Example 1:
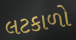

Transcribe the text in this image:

લટકાળો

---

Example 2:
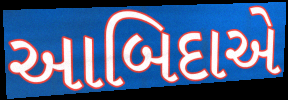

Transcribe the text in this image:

આબિદાએ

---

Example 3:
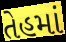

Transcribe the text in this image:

તેહમાં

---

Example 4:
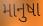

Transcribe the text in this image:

માનુષા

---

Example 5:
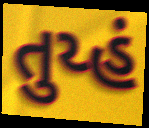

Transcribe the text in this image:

તુય્હં